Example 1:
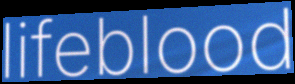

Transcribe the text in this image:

lifeblood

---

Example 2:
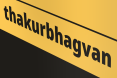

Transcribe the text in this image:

thakurbhagvan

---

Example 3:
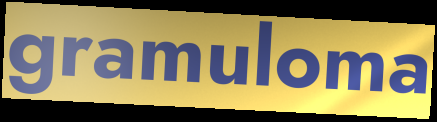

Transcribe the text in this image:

gramuloma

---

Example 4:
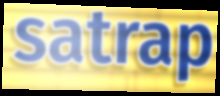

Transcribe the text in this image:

satrap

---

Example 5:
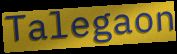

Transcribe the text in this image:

Talegaon